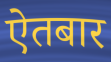
ऐतबार